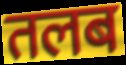
तलब